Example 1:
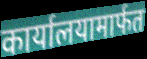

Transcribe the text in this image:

कार्यालयामार्फत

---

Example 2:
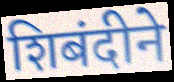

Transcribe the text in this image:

शिबंदीने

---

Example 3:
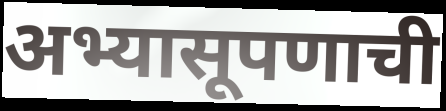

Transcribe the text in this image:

अभ्यासूपणाची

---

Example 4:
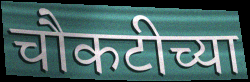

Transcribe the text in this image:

चौकटीच्या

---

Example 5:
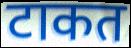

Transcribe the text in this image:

टाकत